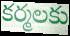
కర్మలకు